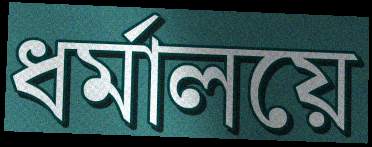
ধর্মালয়ে